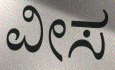
ವೀಸ